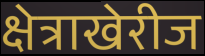
क्षेत्राखेरीज